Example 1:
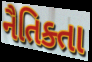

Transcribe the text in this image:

નૈતિક્તા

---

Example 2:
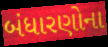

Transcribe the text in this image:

બંધારણોના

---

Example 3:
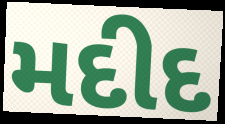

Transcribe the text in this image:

મદીદ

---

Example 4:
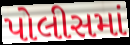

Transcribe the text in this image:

પોલીસમાં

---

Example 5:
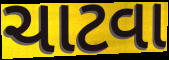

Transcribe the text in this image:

ચાટવા